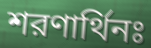
শরণার্থিনঃ